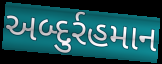
અબ્દુર્રહમાન